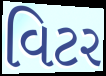
વિટર